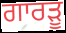
ਗਾਰੜੂ